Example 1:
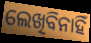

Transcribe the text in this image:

ଲେଖିବିନାହିଁ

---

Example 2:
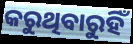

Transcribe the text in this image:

କରୁଥିବାରୁହିଁ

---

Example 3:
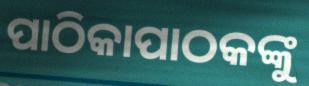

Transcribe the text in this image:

ପାଠିକାପାଠକଙ୍କୁ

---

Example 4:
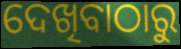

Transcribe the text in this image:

ଦେଖିବାଠାରୁ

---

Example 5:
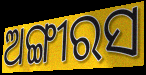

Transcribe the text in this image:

ଅଙ୍ଗୀରସ